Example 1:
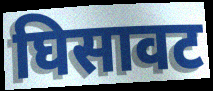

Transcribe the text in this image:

घिसावट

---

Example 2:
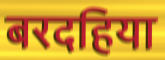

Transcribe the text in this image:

बरदहिया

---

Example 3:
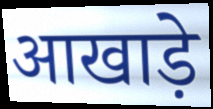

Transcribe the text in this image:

आखाड़े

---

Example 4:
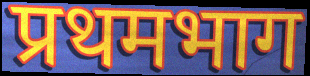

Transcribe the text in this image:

प्रथमभाग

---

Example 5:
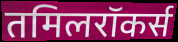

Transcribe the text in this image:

तमिलरॉकर्स